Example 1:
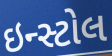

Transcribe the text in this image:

ઇન્સ્ટોલ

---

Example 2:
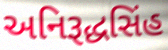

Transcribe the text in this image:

અનિરૂદ્ધસિંહ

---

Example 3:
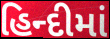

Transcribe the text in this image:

હિન્દીમાં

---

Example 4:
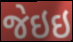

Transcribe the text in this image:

જેઇઇ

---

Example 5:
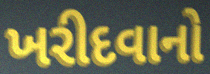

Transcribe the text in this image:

ખરીદવાનો